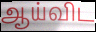
ஆய்விட